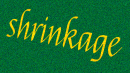
shrinkage